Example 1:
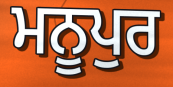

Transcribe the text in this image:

ਮਨੂਪੁਰ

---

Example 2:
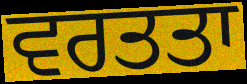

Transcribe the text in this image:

ਵਰਤਤਾ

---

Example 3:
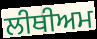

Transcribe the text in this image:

ਲੀਥੀਅਮ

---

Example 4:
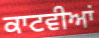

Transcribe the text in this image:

ਕਾਟਵੀਆਂ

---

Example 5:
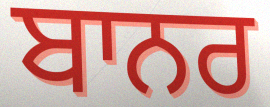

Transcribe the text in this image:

ਬਾਨਰ